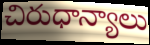
చిరుధాన్యాలు